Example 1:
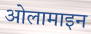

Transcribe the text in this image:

ओलामाइन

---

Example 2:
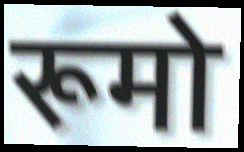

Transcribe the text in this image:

रूमो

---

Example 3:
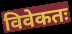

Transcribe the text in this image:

विवेकतः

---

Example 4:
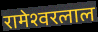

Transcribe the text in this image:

रामेश्वरलाल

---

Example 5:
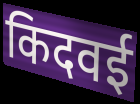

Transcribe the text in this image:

किदवई